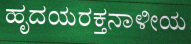
ಹೃದಯರಕ್ತನಾಳೀಯ